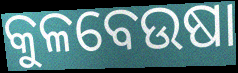
କୁଳବେଉଷା